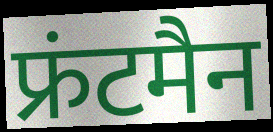
फ्रंटमैन